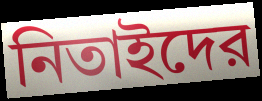
নিতাইদের